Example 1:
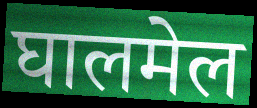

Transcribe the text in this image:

घालमेल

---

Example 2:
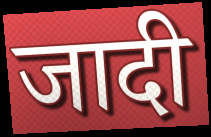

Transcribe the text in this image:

जादी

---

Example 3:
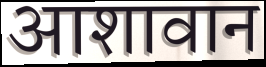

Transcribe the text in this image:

आशावान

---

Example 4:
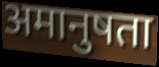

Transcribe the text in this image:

अमानुषता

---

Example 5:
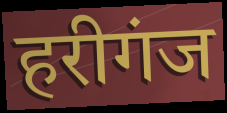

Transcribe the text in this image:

हरीगंज